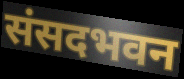
संसदभवन